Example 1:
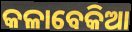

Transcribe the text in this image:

କଳାବେକିଆ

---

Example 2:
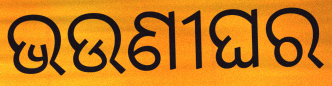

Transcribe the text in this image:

ଭଉଣୀଘର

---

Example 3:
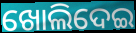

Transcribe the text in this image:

ଖୋଲିଦେଇ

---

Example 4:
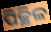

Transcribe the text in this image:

ପିଚ୍ଛିଳ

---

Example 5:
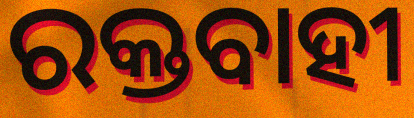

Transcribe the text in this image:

ରକ୍ତବାହୀ